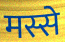
मस्से